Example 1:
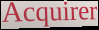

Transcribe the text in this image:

Acquirer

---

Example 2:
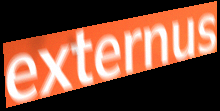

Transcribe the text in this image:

externus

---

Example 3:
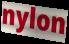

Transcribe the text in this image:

nylon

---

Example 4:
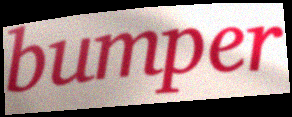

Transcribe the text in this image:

bumper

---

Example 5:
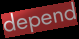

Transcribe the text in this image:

depend